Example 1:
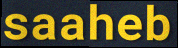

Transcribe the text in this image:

saaheb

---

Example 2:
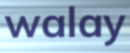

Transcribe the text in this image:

walay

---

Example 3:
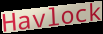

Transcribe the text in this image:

Havlock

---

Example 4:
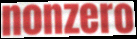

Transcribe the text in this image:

nonzero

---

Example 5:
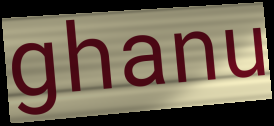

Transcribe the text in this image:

ghanu